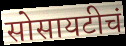
सोसायटीचं